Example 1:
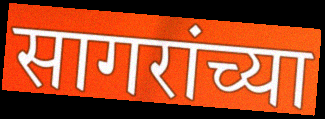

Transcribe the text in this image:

सागरांच्या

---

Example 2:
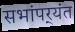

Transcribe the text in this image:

सभांपर्यंत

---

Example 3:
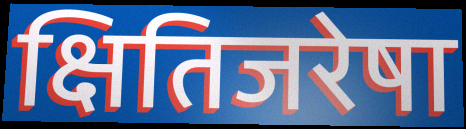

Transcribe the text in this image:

क्षितिजरेषा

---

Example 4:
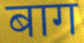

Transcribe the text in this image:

बाग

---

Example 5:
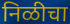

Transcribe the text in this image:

निळीचा